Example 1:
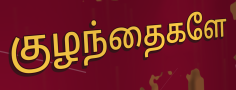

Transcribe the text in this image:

குழந்தைகளே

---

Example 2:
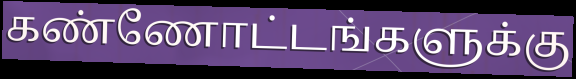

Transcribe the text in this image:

கண்ணோட்டங்களுக்கு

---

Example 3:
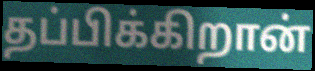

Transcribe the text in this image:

தப்பிக்கிறான்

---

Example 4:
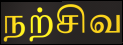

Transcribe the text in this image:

நற்சிவ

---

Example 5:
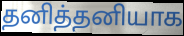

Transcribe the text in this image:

தனித்தனியாக